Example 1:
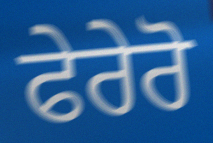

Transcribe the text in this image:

ਫੇਰੇਰੋ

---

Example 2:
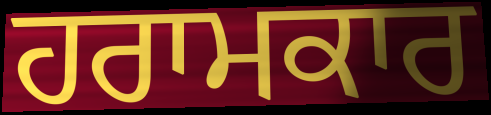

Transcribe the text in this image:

ਹਰਾਮਕਾਰ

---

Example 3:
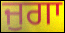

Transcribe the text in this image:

ਜੁਗਾ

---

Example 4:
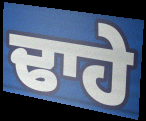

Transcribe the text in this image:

ਢਾਹੇ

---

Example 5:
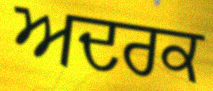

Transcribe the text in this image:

ਅਦਰਕ